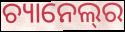
ଚ୍ୟାନେଲ୍‌ର